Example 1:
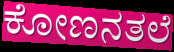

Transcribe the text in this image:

ಕೋಣನತಲೆ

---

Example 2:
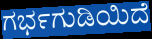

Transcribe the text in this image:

ಗರ್ಭಗುಡಿಯಿದೆ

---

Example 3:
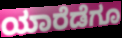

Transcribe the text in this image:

ಯಾರೆಡೆಗೂ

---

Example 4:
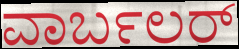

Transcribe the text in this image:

ವಾರ್ಬಲರ್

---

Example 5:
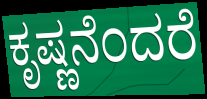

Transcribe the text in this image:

ಕೃಷ್ಣನೆಂದರೆ